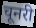
चूनरी